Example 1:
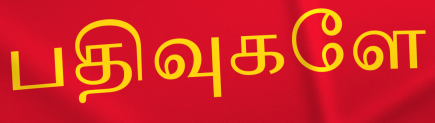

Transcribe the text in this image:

பதிவுகளே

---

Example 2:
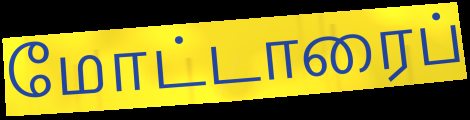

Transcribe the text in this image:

மோட்டாரைப்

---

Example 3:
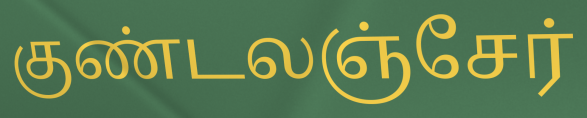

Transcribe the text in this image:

குண்டலஞ்சேர்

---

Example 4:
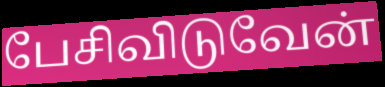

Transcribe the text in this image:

பேசிவிடுவேன்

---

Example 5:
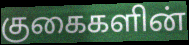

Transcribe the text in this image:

குகைகளின்